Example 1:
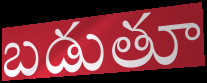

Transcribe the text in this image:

బడుతూ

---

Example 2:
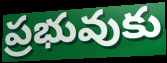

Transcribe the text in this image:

ప్రభువుకు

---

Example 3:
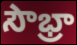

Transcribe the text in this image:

సౌభ్రా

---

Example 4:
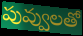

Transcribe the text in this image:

పువ్వులతో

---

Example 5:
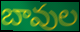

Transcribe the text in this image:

బావుల